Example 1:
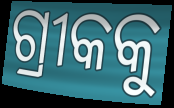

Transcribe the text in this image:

ଗ୍ରୀକକୁ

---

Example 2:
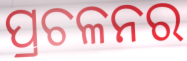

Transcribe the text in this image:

ପ୍ରଚଳନର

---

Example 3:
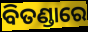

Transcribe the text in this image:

ବିତଣ୍ଡାରେ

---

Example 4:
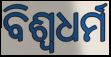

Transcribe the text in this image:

ବିଶ୍ବଧର୍ମ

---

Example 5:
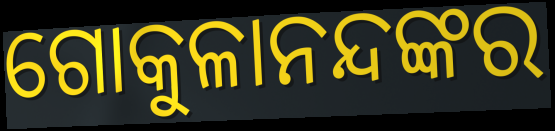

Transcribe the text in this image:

ଗୋକୁଳାନନ୍ଦଙ୍କର